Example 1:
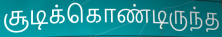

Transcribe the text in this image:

சூடிக்கொண்டிருந்த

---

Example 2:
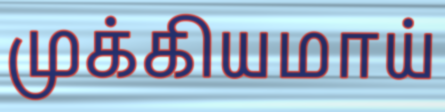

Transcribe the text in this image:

முக்கியமாய்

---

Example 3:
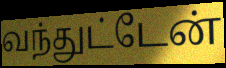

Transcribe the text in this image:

வந்துட்டேன்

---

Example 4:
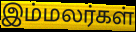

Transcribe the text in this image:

இம்மலர்கள்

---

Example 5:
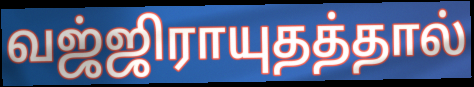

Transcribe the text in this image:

வஜ்ஜிராயுதத்தால்